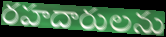
రహదారులను